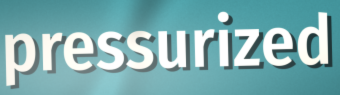
pressurized